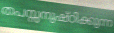
തപസ്സനുഷ്ഠിക്കുന്ന